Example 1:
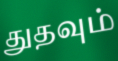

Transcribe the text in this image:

துதவும்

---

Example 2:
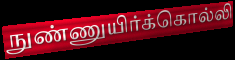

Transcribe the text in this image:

நுண்ணுயிர்க்கொல்லி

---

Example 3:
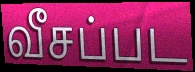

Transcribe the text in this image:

வீசப்பட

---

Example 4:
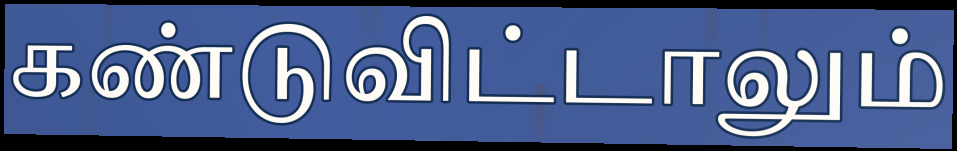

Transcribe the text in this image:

கண்டுவிட்டாலும்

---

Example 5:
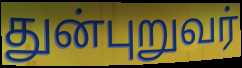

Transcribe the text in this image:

துன்புறுவர்